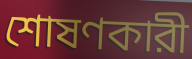
শোষণকারী